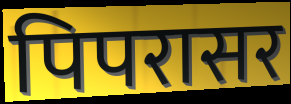
पिपरासर